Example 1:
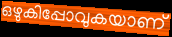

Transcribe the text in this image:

ഒഴുകിപ്പോവുകയാണ്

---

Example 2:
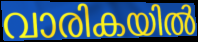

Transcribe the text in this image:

വാരികയിൽ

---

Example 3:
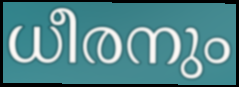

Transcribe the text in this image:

ധീരനും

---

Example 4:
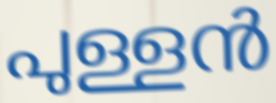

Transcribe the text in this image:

പുള്ളൻ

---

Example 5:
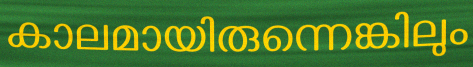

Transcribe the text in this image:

കാലമായിരുന്നെങ്കിലും